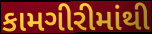
કામગીરીમાંથી